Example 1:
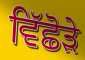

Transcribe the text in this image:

ਵਿੱਛੋੜੇ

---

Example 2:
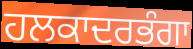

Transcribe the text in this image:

ਹਲਕਾਦਰਭੰਗਾ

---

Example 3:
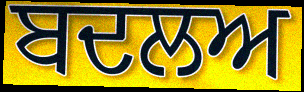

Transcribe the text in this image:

ਬਦਲਅ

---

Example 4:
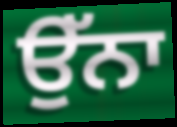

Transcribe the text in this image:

ਉੱਨਾ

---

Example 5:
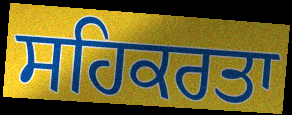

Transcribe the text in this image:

ਸਹਿਕਰਤਾ